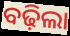
ବଢ଼ିଲା